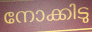
നോക്കിടു